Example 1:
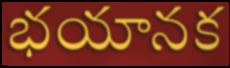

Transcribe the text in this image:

భయానక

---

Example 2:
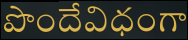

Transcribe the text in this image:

పొందేవిధంగా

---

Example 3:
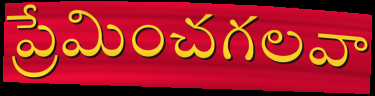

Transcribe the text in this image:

ప్రేమించగలవా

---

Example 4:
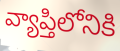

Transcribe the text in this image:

వ్యాప్తిలోనికి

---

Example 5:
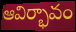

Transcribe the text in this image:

ఆవిర్భావం